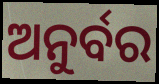
ଅନୁର୍ବର